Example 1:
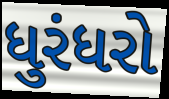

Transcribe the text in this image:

ધુરંધરો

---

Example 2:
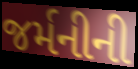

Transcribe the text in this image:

જર્મનીની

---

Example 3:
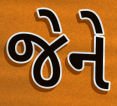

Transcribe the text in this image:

જેને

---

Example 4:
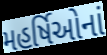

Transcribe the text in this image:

મહર્ષિઓનાં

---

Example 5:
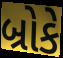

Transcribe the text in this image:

બ્રોકે